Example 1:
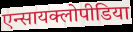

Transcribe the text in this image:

एन्सायक्लोपीडिया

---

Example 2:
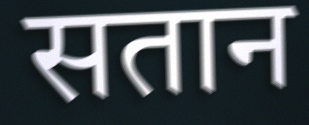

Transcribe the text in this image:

सतान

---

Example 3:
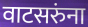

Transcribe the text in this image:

वाटसरुंना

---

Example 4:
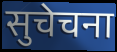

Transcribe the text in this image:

सुचेचना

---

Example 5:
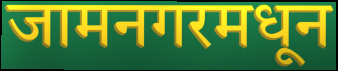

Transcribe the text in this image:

जामनगरमधून